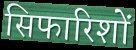
सिफारिशों